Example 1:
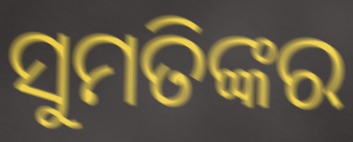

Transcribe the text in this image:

ସୁମତିଙ୍କର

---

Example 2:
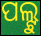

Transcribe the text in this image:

ପଲ୍ଟୁ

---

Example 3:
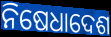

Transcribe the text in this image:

ନିଷେଧାଦେଶ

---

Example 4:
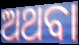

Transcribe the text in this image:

ଅଥବା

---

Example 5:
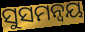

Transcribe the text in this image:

ସୁସମନ୍ଵୟ